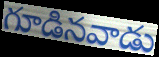
గూడినవాడు